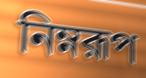
নিম্নরূপ